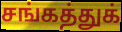
சங்கத்துக்